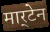
मार्टेन